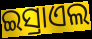
ଇସ୍ରାଏଲ